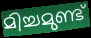
മിച്ചമുണ്ട്